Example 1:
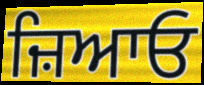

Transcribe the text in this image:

ਜ਼ਿਆਓ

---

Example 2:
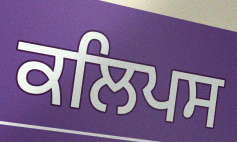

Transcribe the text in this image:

ਕਲਿਪਸ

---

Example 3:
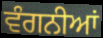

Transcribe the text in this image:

ਵੰਗਨੀਆਂ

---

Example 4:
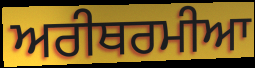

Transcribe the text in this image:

ਅਰੀਥਰਮੀਆ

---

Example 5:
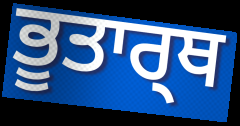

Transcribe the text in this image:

ਭੂਤਾਰ੍ਥ